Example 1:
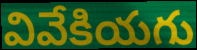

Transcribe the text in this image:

వివేకియగు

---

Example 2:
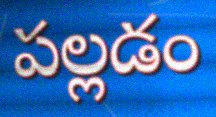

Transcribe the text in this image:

పల్లడం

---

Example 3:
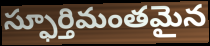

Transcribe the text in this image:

స్ఫూర్తిమంతమైన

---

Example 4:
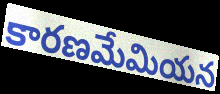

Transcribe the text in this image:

కారణమేమియన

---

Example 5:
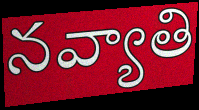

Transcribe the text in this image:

నవ్యాతి